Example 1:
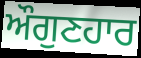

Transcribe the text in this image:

ਔਗੁਣਹਾਰ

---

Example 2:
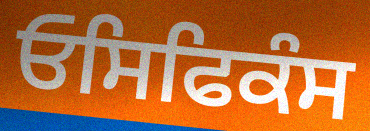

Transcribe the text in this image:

ਓਸਿਫਿਕੰਸ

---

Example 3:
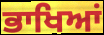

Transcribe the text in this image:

ਭਾਖਿਆਂ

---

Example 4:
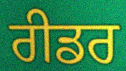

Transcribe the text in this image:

ਰੀਡਰ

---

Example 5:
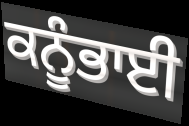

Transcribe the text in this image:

ਕਨੂੰਭਾਈ